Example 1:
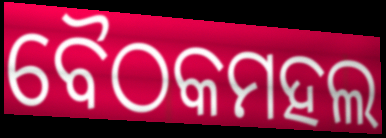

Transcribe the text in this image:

ବୈଠକମହଲ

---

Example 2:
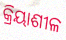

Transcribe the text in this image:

କ୍ରିୟାଶୀଳ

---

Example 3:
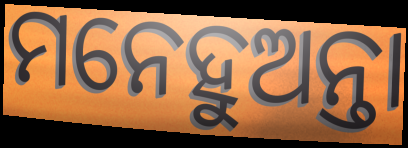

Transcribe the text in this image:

ମନେହୁଅନ୍ତା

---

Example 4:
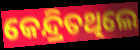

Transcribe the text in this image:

କେନ୍ଦ୍ରିତଥିଲେ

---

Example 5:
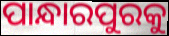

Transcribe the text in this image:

ପାନ୍ଧାରପୁରକୁ